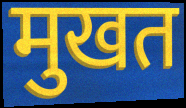
मुखत